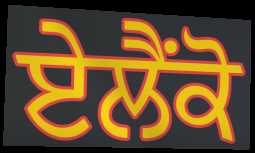
ਏਲੈਂਕੋ